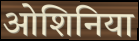
ओशिनिया